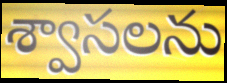
శ్వాసలను